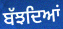
ਬੱਝਦਿਆਂ